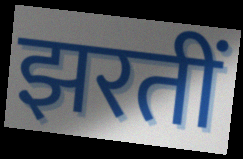
झरतीं